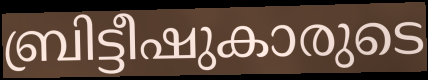
ബ്രിട്ടീഷുകാരുടെ